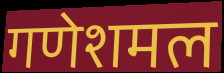
गणेशमल